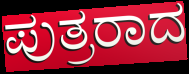
ಪುತ್ರರಾದ